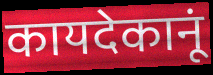
कायदेकानूं